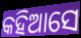
କହିଆସେ